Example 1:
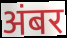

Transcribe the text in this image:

अंबर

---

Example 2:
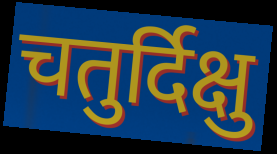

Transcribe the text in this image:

चतुर्दिक्षु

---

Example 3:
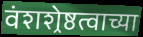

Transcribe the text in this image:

वंशश्रेष्ठत्वाच्या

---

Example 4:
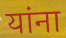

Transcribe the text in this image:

यांना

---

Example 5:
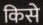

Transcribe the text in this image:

किसे